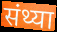
संथ्या